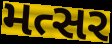
મત્સર